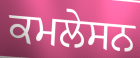
ਕਮਲੇਸਨ